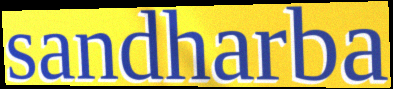
sandharba